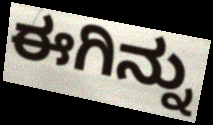
ಈಗಿನ್ನು